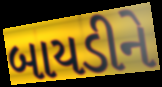
બાયડીને